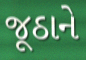
જૂઠાને